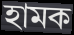
হামক